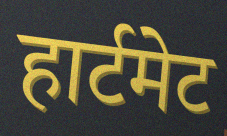
हार्टमेट